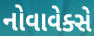
નોવાવેક્સે